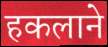
हकलाने